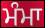
ਮੰਮਾ